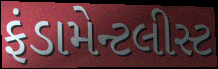
ફંડામેન્ટલીસ્ટ